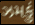
ઝમકું